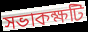
সভাকক্ষটি